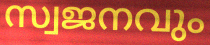
സ്വജനവും